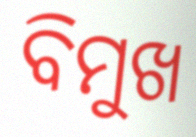
ବିମୁଖ